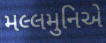
મલ્લમુનિએ